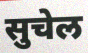
सुचेल